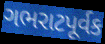
ગભરાટપૂર્વક